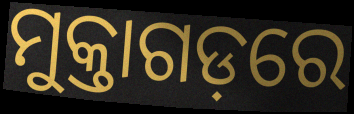
ମୁକ୍ତାଗଡ଼ରେ